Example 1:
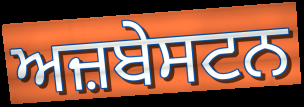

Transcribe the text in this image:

ਅਜ਼ਬੇਸਟਨ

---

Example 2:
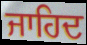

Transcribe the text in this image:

ਜਾਹਿਦ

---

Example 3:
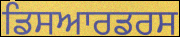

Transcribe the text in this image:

ਡਿਸਆਰਡਰਸ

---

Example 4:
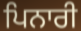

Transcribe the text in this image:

ਪਿਨਾਰੀ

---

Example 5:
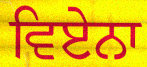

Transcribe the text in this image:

ਵਿਏਨਾ